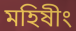
মহিষীং